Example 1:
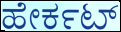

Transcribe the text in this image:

ಹೇರ್ಕಟ್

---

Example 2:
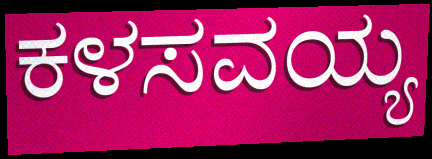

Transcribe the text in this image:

ಕಳಸವಯ್ಯ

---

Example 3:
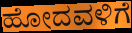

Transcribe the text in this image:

ಹೋದವಳಿಗೆ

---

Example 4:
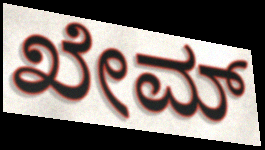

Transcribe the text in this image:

ಖೇಮ್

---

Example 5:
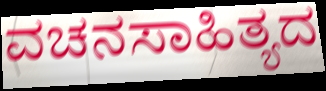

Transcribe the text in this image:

ವಚನಸಾಹಿತ್ಯದ